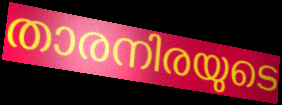
താരനിരയുടെ